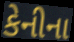
કેનીના